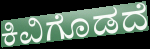
ಕಿವಿಗೊಡದೆ